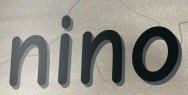
nino